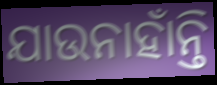
ଯାଉନାହାଁନ୍ତି